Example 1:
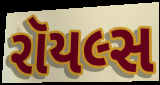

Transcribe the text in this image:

રૉયલ્સ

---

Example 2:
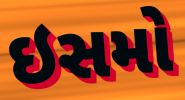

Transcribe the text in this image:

ઇસમો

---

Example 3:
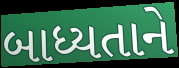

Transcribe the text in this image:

બાધ્યતાને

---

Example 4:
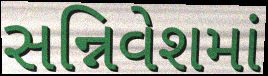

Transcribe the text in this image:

સન્નિવેશમાં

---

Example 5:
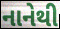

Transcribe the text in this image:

નાનેથી